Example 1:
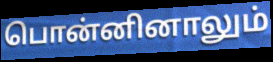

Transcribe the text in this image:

பொன்னினாலும்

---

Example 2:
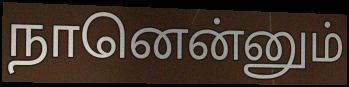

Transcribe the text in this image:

நானென்னும்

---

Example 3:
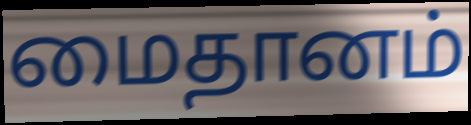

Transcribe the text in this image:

மைதானம்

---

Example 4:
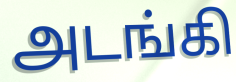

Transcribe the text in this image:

அடங்கி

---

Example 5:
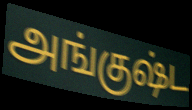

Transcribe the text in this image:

அங்குஷ்ட